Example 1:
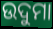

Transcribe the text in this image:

ଉଦୁମା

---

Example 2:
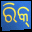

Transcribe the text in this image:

ରିକ୍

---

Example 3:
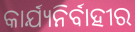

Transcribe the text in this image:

କାର୍ଯ୍ୟନିର୍ବାହୀର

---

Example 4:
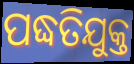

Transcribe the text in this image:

ପଦ୍ଧତିଯୁକ୍ତ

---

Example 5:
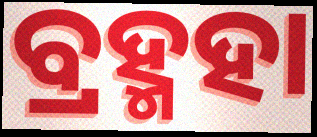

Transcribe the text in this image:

ବ୍ରହ୍ମହା